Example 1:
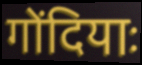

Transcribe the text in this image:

गोंदियाः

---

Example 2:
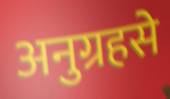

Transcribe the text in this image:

अनुग्रहसे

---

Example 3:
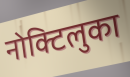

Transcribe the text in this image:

नोक्टिलुका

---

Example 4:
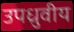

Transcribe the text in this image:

उपध्रुवीय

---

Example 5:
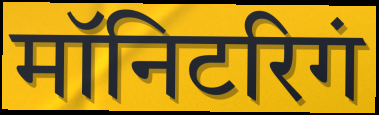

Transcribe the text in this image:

मॉनिटरिगं